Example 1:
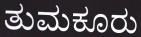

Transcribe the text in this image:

ತುಮಕೂರು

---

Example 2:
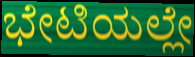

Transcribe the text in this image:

ಭೇಟಿಯಲ್ಲೇ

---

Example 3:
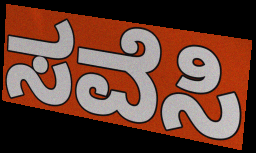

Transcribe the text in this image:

ಸವೆಸಿ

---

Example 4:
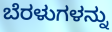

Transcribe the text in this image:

ಬೆರಳುಗಳನ್ನು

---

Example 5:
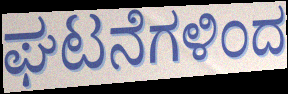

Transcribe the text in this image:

ಘಟನೆಗಳಿಂದ